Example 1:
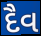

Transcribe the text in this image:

દૈવ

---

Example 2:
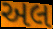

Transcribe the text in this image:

અલ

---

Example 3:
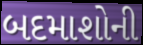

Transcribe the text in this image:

બદમાશોની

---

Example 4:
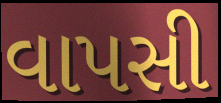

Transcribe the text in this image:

વાપસી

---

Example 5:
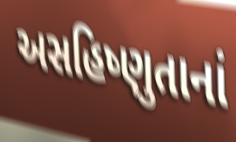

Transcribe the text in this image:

અસહિષ્ણુતાનાં